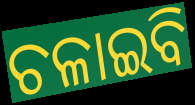
ଚଳାଇବି